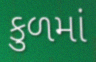
કુળમાં